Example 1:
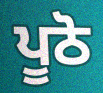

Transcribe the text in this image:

ਪੂਠੋ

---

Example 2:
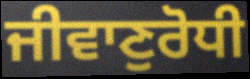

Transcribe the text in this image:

ਜੀਵਾਣੁਰੋਧੀ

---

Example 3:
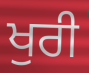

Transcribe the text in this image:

ਖੁਰੀ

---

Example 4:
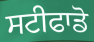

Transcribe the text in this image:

ਸਟੀਫਾਡੋ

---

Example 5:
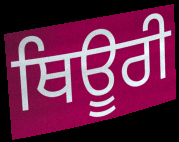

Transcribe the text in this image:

ਥਿਊਰੀ